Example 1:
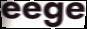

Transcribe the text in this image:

eege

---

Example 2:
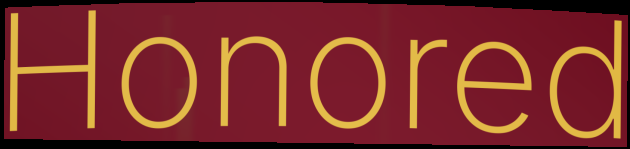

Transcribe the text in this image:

Honored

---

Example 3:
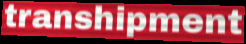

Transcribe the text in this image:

transhipment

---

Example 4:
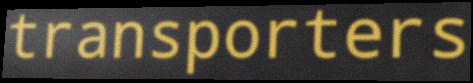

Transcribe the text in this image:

transporters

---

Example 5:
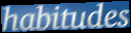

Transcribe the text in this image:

habitudes